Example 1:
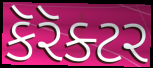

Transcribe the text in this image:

કૅરૅક્ટર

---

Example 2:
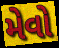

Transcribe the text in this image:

મેવો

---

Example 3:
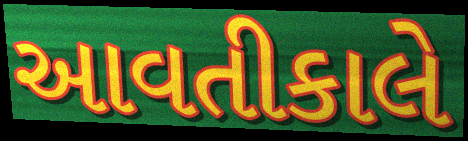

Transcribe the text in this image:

આવતીકાલે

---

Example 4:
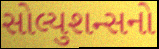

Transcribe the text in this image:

સોલ્યુશન્સનો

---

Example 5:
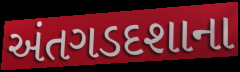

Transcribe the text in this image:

અંતગડદશાના